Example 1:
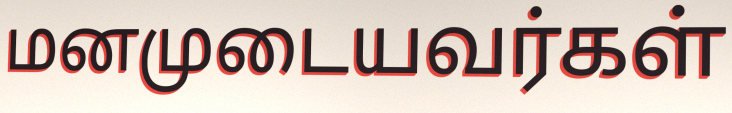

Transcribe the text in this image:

மனமுடையவர்கள்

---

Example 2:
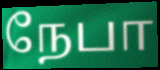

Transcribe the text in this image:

நேபா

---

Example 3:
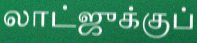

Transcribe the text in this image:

லாட்ஜுக்குப்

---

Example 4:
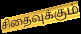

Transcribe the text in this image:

சிதைவுக்கும்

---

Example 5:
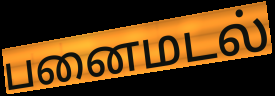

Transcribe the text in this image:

பனைமடல்